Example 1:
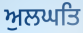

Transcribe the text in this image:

ਅੁਲਘਤਿ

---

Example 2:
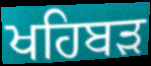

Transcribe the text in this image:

ਖਹਿਬੜ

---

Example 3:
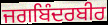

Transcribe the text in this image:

ਜਗਬਿੰਦਰਬੀਰ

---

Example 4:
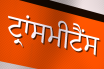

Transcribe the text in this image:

ਟ੍ਰਾਂਸਮੀਟੈਂਸ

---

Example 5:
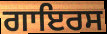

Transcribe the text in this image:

ਗਾਇਰਸ